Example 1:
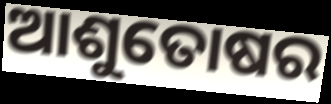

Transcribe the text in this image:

ଆଶୁତୋଷର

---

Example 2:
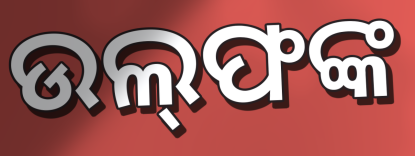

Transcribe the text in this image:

ଉଲ୍‌ଫଙ୍କ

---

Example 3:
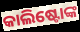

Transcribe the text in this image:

କାଲିଷ୍ଟୋଙ୍କ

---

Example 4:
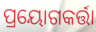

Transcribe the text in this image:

ପ୍ରୟୋଗକର୍ତ୍ତା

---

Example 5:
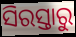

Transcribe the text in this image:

ସିରସ୍ତାରୁ